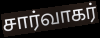
சார்வாகர்